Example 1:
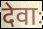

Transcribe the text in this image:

देवाः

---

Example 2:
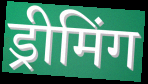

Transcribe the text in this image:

ड्रीमिंग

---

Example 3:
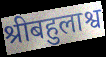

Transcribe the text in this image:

श्रीबहुलाश्व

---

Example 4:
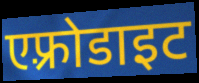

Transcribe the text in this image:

एफ़्रोडाइट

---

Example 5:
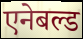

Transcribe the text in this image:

एनेबल्ड